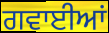
ਗਵਾਈਆਂ